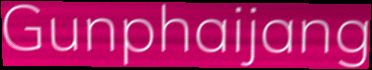
Gunphaijang